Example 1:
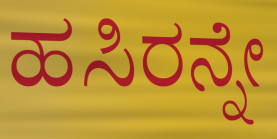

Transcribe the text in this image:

ಹಸಿರನ್ನೇ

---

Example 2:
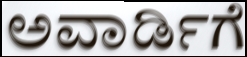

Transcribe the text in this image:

ಅವಾರ್ಡಿಗೆ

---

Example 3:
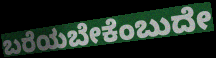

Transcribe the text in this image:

ಬರೆಯಬೇಕೆಂಬುದೇ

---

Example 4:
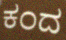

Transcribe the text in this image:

ಕಂದ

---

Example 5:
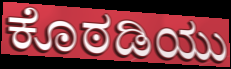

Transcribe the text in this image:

ಕೊಠಡಿಯು